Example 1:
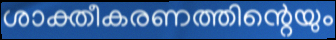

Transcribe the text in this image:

ശാക്തീകരണത്തിന്റെയും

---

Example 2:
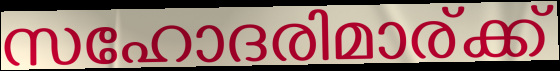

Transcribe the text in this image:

സഹോദരിമാര്ക്ക്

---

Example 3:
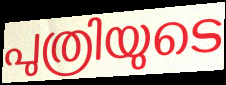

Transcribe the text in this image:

പുത്രിയുടെ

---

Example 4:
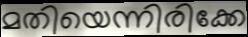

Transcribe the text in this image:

മതിയെന്നിരിക്കേ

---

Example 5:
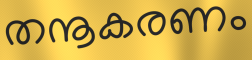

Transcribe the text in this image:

തനൂകരണം